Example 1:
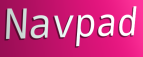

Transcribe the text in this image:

Navpad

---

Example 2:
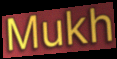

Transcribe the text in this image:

Mukh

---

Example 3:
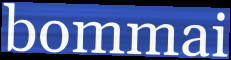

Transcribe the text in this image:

bommai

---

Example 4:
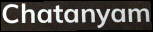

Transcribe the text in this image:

Chatanyam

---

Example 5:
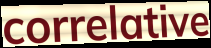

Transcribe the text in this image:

correlative